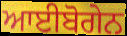
ਆਈਬੋਗੇਨ